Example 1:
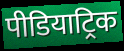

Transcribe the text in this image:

पीडियाट्रिक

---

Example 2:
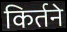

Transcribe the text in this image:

किर्तने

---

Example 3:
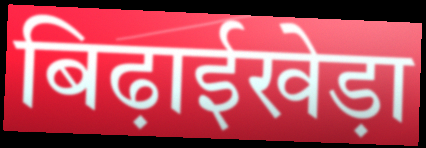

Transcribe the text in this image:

बिढ़ाईखेड़ा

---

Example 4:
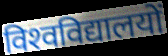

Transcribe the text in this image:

विश्‍वविद्यालयों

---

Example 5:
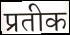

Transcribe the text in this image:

प्रतीक